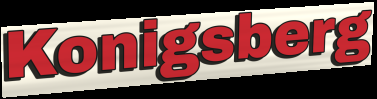
Konigsberg